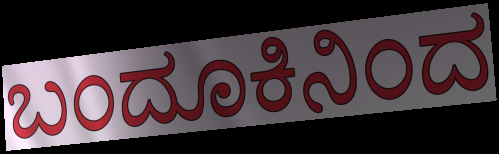
ಬಂದೂಕಿನಿಂದ